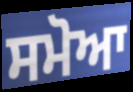
ਸਮੋਆ